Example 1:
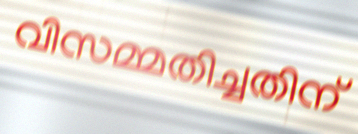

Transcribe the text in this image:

വിസമ്മതിച്ചതിന്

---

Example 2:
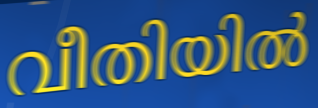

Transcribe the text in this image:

വീതിയിൽ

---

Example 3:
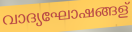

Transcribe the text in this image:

വാദ്യഘോഷങ്ങള്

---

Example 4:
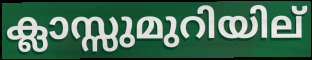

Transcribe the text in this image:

ക്ലാസ്സുമുറിയില്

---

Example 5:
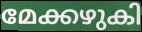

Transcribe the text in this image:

മേക്കഴുകി